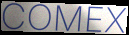
COMEX